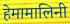
हेमामालिनी